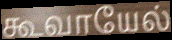
கூவாயேல்